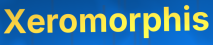
Xeromorphis